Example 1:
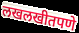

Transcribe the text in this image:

लखलखीतपणे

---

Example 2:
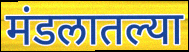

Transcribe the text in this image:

मंडलातल्या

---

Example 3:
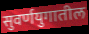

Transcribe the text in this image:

सुवर्णयुगातील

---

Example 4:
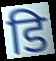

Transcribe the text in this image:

डि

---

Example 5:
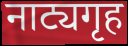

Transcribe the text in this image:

नाट्यगृह